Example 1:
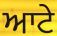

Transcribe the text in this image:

ਆਟੇ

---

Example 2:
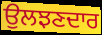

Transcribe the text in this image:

ਉਲਝਣਦਾਰ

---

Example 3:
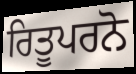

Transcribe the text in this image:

ਰਿਤੂਪਰਨੋ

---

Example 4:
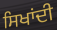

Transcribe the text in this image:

ਸਿਖਾਂਦੀ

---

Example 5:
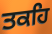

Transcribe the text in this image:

ਤਕਹਿ